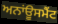
ਅਨਾਂਊਸਮੈਂਟ